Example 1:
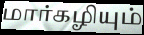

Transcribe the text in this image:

மார்கழியும்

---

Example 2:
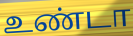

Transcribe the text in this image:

உண்டா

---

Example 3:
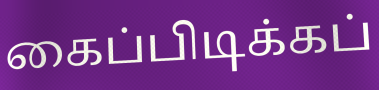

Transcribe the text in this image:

கைப்பிடிக்கப்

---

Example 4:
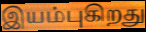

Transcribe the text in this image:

இயம்புகிறது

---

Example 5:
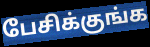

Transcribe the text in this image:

பேசிக்குங்க